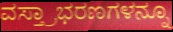
ವಸ್ತ್ರಾಭರಣಗಳನ್ನೂ